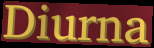
Diurna